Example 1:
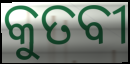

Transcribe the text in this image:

କୁତବୀ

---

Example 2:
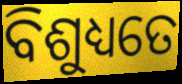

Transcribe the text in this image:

ବିଶୁଧ୍ୟତେ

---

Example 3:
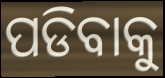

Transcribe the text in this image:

ପଡିବାକୁ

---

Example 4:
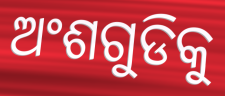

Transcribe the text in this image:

ଅଂଶଗୁଡିକୁ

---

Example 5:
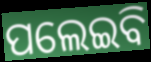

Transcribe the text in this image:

ପଲେଇବି